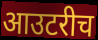
आउटरीच